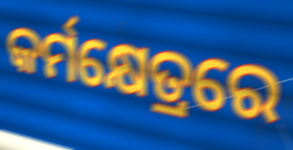
କର୍ମକ୍ଷେତ୍ରରେ